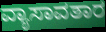
ವ್ಯಾಸಾವತಾರ